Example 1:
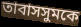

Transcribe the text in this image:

তাবাসসুমকে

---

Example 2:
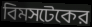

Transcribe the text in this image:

বিমসটেকের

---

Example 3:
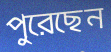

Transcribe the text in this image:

পুরেছেন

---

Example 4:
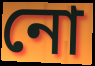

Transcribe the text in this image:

নো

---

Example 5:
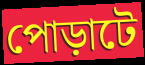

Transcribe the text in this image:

পোড়াটে